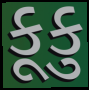
કૂકુ